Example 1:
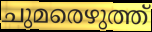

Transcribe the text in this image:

ചുമരെഴുത്ത്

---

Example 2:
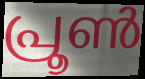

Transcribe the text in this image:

പ്രൂൺ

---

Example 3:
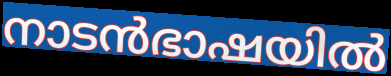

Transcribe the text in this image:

നാടൻഭാഷയിൽ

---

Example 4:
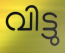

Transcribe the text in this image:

വിട്ടു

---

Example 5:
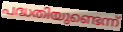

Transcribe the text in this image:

പദ്ധതിയുണ്ടെന്ന്